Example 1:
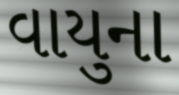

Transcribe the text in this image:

વાયુના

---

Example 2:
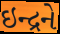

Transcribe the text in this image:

ઇન્દ્રને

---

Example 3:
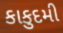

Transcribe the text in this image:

કાકુદમી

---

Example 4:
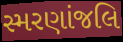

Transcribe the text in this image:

સ્મરણાંજલિ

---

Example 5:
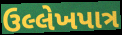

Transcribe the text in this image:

ઉલ્લેખપાત્ર